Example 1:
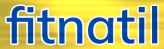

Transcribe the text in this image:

fitnatil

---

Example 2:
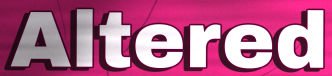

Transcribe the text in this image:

Altered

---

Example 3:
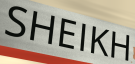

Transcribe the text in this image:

SHEIKH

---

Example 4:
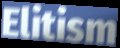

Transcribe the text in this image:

Elitism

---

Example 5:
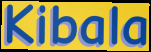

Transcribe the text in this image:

Kibala